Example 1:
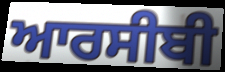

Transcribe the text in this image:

ਆਰਸੀਬੀ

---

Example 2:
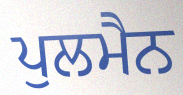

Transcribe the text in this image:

ਪੁਲਮੈਨ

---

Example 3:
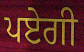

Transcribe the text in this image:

ਪਏਗੀ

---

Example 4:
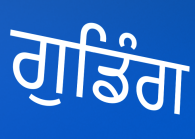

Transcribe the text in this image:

ਗੁਡਿੰਗ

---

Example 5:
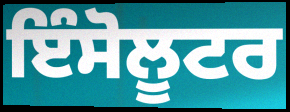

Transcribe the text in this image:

ਇੰਸੋਲੂਟਰ